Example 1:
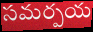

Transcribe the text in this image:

సమర్పయ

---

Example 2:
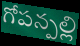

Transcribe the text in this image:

గోపన్పల్లి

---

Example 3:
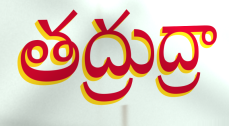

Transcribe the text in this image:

తద్రుద్రా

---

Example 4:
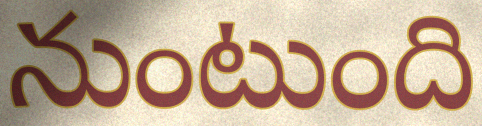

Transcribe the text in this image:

నుంటుంది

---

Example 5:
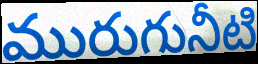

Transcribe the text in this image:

మురుగునీటి